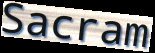
Sacram